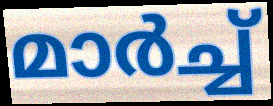
മാർച്ച്